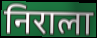
निराला